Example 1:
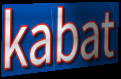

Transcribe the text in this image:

kabat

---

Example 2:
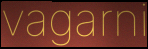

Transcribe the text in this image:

vagarni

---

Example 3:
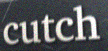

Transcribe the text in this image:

cutch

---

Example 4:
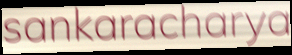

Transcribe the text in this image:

sankaracharya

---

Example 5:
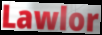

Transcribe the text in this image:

Lawlor